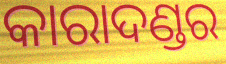
କାରାଦଣ୍ଡର